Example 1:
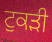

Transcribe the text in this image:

ਟੁਕਡ਼ੀ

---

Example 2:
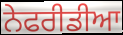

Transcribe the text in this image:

ਨੇਫਰੀਡੀਆ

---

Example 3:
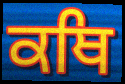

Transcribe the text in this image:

ਕਥਿ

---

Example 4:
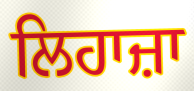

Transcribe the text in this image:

ਲਿਹਾਜ਼ਾ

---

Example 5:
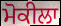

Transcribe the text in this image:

ਮੋਕੀਲਾ